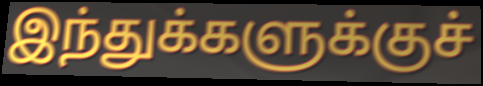
இந்துக்களுக்குச்